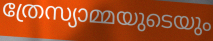
ത്രേസ്യാമ്മയുടെയും